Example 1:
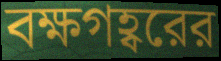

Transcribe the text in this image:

বক্ষগহ্বরের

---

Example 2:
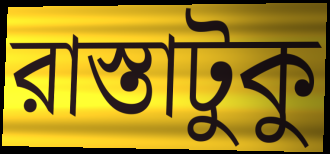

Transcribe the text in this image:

রাস্তাটুকু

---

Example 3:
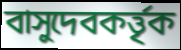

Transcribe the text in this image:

বাসুদেবকর্ত্তৃক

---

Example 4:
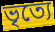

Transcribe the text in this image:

ভৃত্যে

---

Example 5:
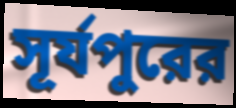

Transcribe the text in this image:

সূর্যপুরের